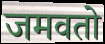
जमवतो